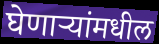
घेणाऱ्यांमधील